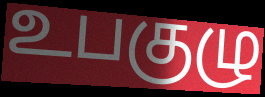
உபகுழு